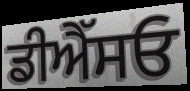
ਡੀਐੱਸਓ